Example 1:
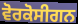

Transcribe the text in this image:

ਵੋਰਕੋਸੀਗਨ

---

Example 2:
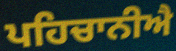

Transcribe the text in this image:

ਪਹਿਚਾਨੀਐ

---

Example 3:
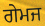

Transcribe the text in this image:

ਗੇਮਜ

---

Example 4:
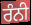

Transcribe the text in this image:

ਰੰਨੀ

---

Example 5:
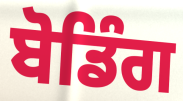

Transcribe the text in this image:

ਬੋਡਿੰਗ